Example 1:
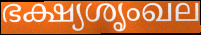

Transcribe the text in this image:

ഭക്ഷ്യശൃംഖല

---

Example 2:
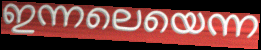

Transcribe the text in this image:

ഇന്നലെയെന്ന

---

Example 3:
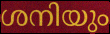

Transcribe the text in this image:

ശനിയും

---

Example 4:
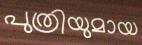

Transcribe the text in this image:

പുത്രിയുമായ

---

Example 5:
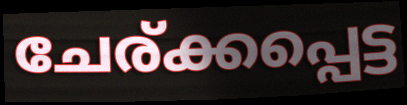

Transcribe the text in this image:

ചേര്ക്കപ്പെട്ട